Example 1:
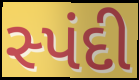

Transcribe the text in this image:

સ્પંદી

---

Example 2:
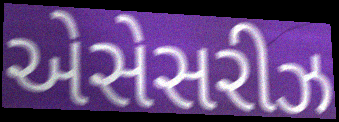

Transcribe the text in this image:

એસેસરીઝ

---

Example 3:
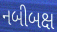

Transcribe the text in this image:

નબીબક્ષ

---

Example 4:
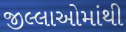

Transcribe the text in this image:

જીલ્લાઓમાંથી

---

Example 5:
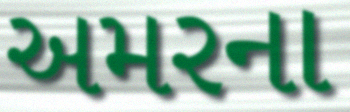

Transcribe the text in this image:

અમરના